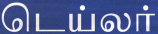
டெய்லர்